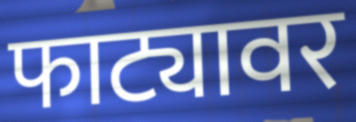
फाट्यावर